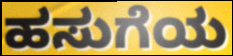
ಹಸುಗೆಯ